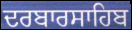
ਦਰਬਾਰਸਾਹਿਬ